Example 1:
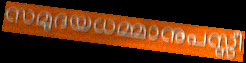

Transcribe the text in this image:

സമുദയധമ്മാനുപസ്സീ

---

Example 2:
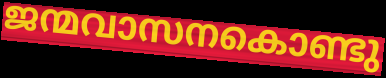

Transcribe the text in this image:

ജന്മവാസനകൊണ്ടു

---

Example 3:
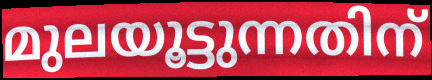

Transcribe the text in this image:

മുലയൂട്ടുന്നതിന്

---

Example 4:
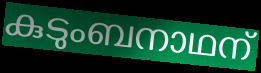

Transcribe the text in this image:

കുടുംബനാഥന്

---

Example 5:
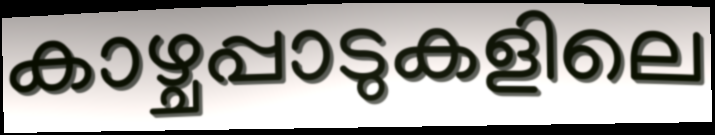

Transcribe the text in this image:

കാഴ്ചപ്പാടുകളിലെ